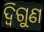
ଦ୍ୱିଗୁଣ